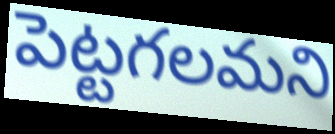
పెట్టగలమని